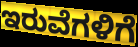
ಇರುವೆಗಳಿಗೆ